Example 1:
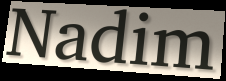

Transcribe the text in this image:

Nadim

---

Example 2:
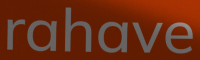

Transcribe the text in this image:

rahave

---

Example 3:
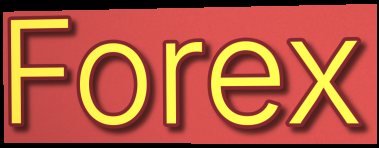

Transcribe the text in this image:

Forex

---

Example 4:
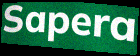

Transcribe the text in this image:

Sapera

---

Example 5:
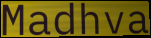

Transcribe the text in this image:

Madhva